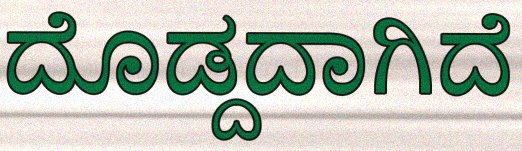
ದೊಡ್ದದಾಗಿದೆ